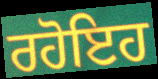
ਰਹੋਇਹ